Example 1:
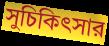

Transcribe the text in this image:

সুচিকিৎসার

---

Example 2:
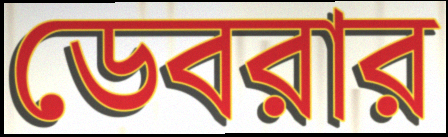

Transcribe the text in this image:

ডেবরার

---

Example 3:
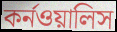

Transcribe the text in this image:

কর্নওয়ালিস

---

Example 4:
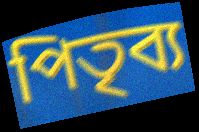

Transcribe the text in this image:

পিতৃব্য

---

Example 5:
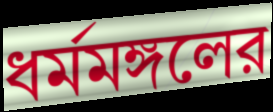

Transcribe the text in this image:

ধর্মমঙ্গলের